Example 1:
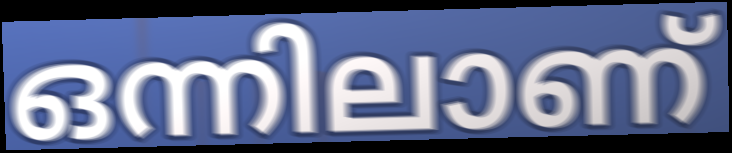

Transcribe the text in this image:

ഒന്നിലാണ്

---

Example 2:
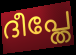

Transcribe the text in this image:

ദീപ്തേ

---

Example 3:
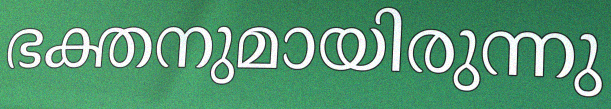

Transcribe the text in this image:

ഭക്തനുമായിരുന്നു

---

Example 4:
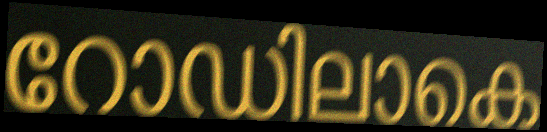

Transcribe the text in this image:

റോഡിലാകെ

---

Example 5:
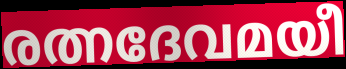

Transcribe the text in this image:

രത്നദേവമയീ